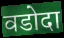
वडोदा